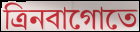
ত্রিনবাগোতে